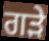
ਗੜੇ